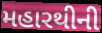
મહારથીની